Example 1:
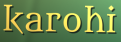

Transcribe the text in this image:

karohi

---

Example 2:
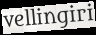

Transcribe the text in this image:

vellingiri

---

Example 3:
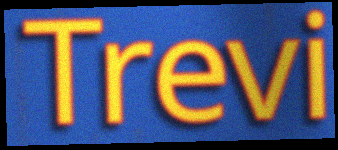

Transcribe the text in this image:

Trevi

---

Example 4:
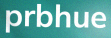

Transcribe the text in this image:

prbhue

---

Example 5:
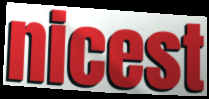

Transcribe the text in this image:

nicest